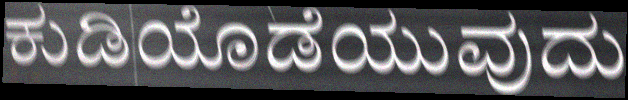
ಕುಡಿಯೊಡೆಯುವುದು